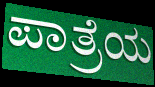
ಪಾತ್ರೆಯ